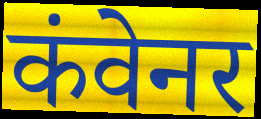
कंवेनर